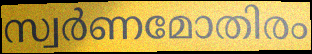
സ്വർണമോതിരം